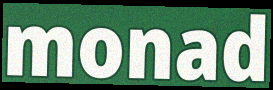
monad